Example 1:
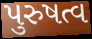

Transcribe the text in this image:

પુરુષત્વ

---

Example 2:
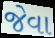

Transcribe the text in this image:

જેવા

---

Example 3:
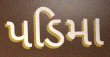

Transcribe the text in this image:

પડિમા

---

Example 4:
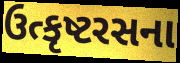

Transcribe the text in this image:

ઉત્કૃષ્ટરસના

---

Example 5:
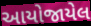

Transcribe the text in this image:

આયોજાયેલ